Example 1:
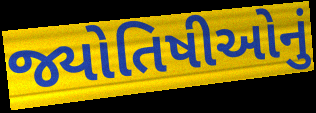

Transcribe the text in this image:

જ્યોતિષીઓનું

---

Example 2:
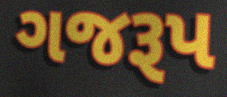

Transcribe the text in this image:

ગજરૂપ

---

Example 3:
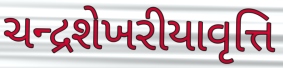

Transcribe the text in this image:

ચન્દ્રશેખરીયાવૃત્તિ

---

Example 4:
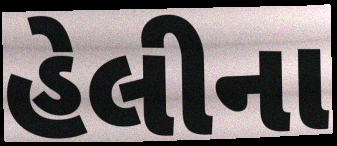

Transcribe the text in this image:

હેલીના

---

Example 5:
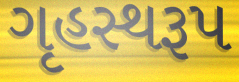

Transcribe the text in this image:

ગૃહસ્થરૂપ